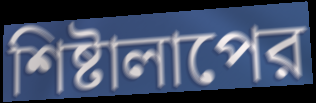
শিষ্টালাপের